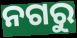
ନଗରୁ